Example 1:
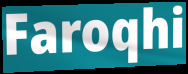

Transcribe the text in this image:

Faroqhi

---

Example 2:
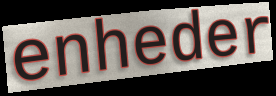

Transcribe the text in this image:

enheder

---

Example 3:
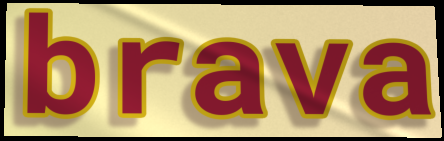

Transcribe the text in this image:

brava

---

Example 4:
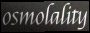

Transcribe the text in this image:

osmolality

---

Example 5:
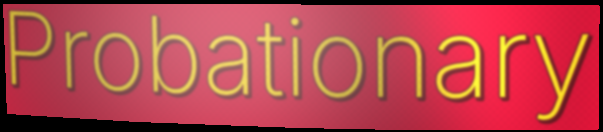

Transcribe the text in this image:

Probationary